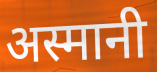
अस्मानी